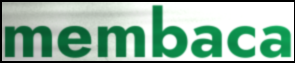
membaca